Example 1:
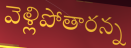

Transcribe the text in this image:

వెళ్లిపోతారన్న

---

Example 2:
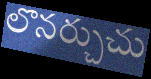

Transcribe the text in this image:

లొనర్చుచు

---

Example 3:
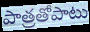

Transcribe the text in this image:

పాత్రతోపాటు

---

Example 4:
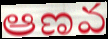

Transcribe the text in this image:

ఆణవ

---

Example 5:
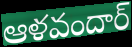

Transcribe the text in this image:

ఆళవందార్